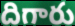
దిగారు